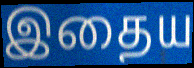
இதைய